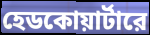
হেডকোয়ার্টারে